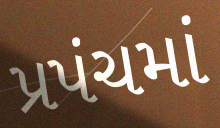
પ્રપંચમાં